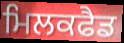
ਮਿਲਕਫੈਡ